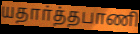
யதார்த்தபாணி